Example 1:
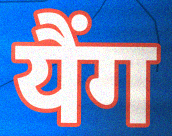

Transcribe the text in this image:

यैंग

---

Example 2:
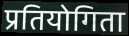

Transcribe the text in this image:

प्रतियोगिता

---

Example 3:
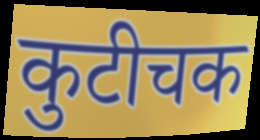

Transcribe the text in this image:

कुटीचक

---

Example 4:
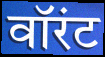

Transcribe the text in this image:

वॉरंट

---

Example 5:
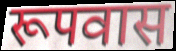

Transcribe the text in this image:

रूपवास